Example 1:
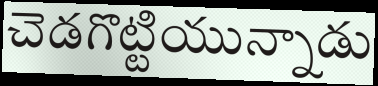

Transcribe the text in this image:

చెడగొట్టియున్నాడు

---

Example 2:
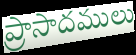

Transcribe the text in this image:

ప్రాసాదములు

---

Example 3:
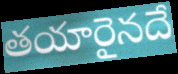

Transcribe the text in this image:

తయారైనదే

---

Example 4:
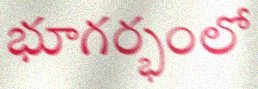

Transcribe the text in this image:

భూగర్భంలో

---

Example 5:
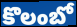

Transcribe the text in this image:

కొలంబో